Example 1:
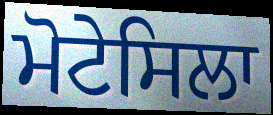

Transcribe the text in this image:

ਮੋਟੇਸਿਲਾ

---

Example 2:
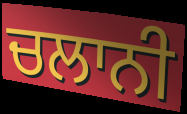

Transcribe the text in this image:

ਚਲਾਨੀ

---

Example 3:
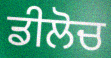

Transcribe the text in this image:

ਡੀਲੋਚ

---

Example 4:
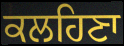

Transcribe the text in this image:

ਕਲਹਿਣਾ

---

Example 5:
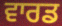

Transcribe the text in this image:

ਵਾਰਡ